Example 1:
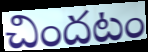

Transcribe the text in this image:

చిందటం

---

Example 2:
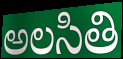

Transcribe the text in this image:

అలసితి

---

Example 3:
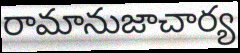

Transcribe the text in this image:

రామానుజాచార్య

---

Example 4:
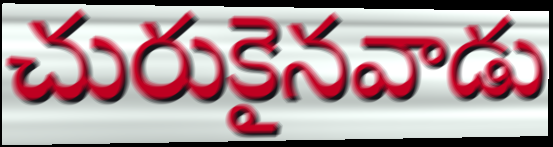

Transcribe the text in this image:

చురుకైనవాడు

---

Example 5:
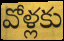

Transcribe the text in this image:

వోళ్లకు